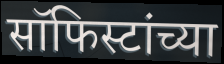
सॉफिस्टांच्या